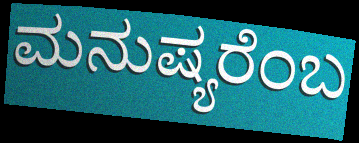
ಮನುಷ್ಯರೆಂಬ